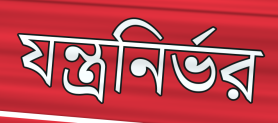
যন্ত্রনির্ভর